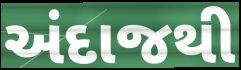
અંદાજથી